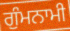
ਗੁੰਮਨਾਮੀ